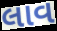
લાવ